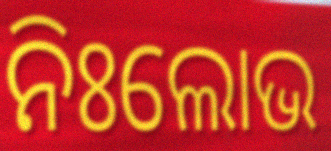
ନିଃଲୋଭ